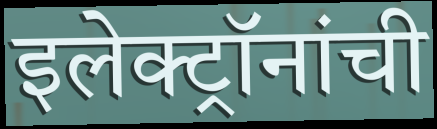
इलेक्ट्रॉनांची